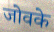
जोवके